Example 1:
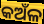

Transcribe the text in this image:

କଅଁଳ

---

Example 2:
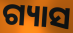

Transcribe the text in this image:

ଗ୍ୟାସ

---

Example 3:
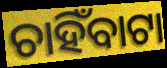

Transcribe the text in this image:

ଚାହିଁବାଟା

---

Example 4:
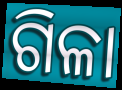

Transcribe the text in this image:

ଗିଳା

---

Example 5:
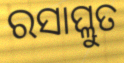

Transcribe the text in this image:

ରସାପ୍ଲୁତ